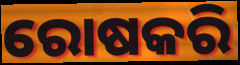
ରୋଷକରି